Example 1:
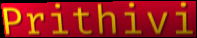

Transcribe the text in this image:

Prithivi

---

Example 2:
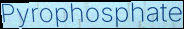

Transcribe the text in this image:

Pyrophosphate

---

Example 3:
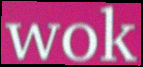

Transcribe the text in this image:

wok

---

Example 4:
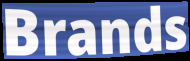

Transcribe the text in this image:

Brands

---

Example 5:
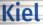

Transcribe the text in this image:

Kiel